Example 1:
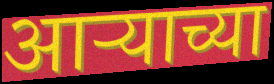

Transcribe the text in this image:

आऱ्याच्या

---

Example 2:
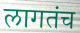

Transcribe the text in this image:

लागतंच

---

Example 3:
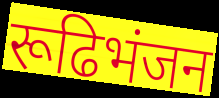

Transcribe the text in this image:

रूढिभंजन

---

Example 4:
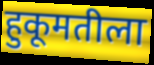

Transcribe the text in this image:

हुकूमतीला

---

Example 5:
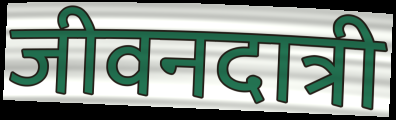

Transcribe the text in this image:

जीवनदात्री